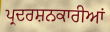
ਪ੍ਰਦਰਸ਼ਨਕਾਰੀਆਂ